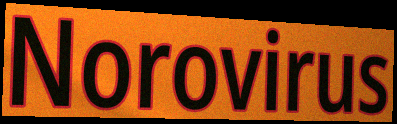
Norovirus